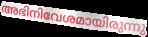
അഭിനിവേശമായിരുന്നു